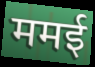
ममई